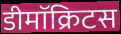
डीमॉक्रिटस